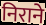
निराने